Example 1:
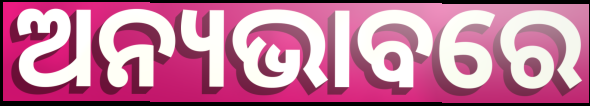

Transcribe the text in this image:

ଅନ୍ୟଭାବରେ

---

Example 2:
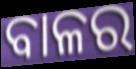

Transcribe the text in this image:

ବାଳର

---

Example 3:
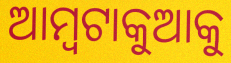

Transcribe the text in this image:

ଆମ୍ବଟାକୁଆକୁ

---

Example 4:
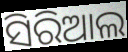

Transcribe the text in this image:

ସିରିଆଲ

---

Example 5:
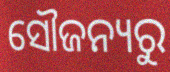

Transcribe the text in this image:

ସୌଜନ୍ୟରୁ